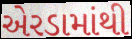
એરડામાંથી